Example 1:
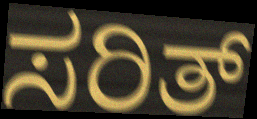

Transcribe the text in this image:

ಸರಿತ್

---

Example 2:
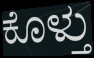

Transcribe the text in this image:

ಕೊಳ್ತು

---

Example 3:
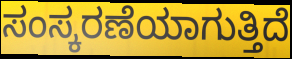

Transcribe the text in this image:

ಸಂಸ್ಕರಣೆಯಾಗುತ್ತಿದೆ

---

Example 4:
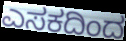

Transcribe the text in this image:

ಎಸಕದಿಂದ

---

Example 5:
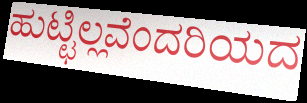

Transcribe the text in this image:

ಹುಟ್ಟಿಲ್ಲವೆಂದರಿಯದ